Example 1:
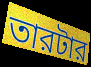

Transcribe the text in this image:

তারটার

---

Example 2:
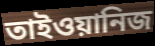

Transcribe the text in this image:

তাইওয়ানিজ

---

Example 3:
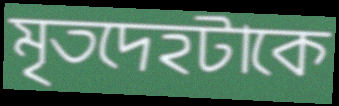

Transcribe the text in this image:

মৃতদেহটাকে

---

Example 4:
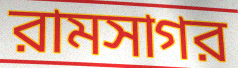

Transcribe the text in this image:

রামসাগর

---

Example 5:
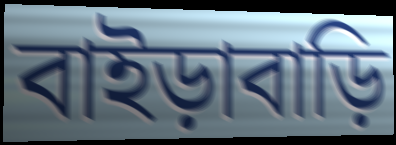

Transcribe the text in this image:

বাইড়াবাড়ি